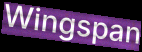
Wingspan